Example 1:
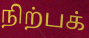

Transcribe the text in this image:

நிற்பக்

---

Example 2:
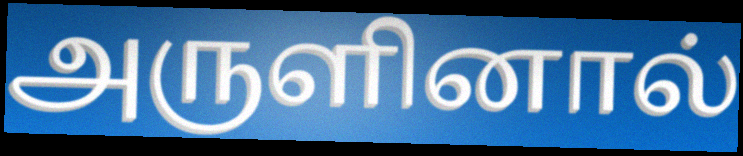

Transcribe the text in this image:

அருளினால்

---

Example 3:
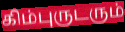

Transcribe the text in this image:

கிம்புருடரும்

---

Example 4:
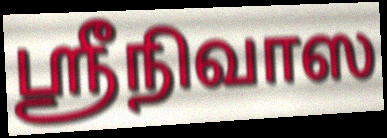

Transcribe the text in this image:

ஸ்ரீநிவாஸ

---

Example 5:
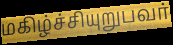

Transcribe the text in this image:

மகிழ்ச்சியுறுபவர்